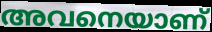
അവനെയാണ്